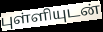
புள்ளியுடன்